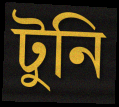
টুনি